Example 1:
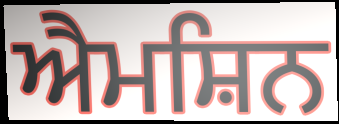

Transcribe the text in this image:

ਐਮਸ਼ਿਨ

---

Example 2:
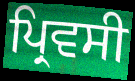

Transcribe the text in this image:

ਪ੍ਰਿਵਸੀ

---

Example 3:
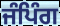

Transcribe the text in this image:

ਜੰਪਿੰਗ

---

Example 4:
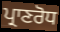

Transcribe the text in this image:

ਪ੍ਰਾਣਰੋਧ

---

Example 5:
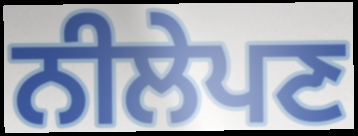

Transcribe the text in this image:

ਨੀਲੇਪਣ